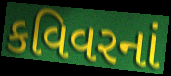
કવિવરનાં